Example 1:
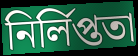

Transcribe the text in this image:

নির্লিপ্ততা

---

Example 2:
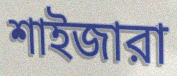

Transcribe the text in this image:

শাইজারা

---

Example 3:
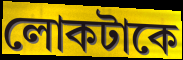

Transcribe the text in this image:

লোকটাকে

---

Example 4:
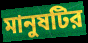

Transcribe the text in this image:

মানুষটির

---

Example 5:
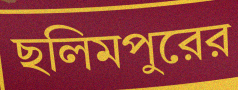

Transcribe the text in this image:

ছলিমপুরের